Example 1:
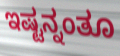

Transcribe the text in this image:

ಇಷ್ಟನ್ನಂತೂ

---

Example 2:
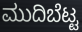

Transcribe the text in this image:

ಮುದಿಬೆಟ್ಟ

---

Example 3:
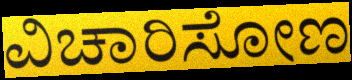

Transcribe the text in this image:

ವಿಚಾರಿಸೋಣ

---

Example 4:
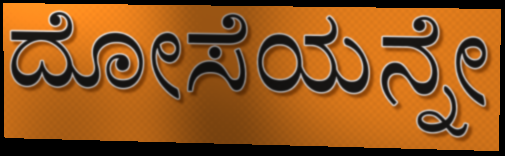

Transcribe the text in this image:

ದೋಸೆಯನ್ನೇ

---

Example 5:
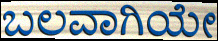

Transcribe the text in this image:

ಬಲವಾಗಿಯೇ